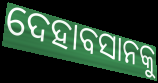
ଦେହାବସାନକୁ